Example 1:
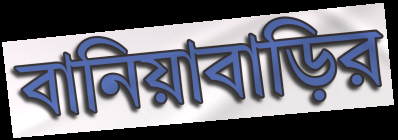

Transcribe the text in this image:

বানিয়াবাড়ির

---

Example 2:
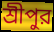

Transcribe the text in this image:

শ্রীপুর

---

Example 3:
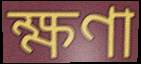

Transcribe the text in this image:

ক্ষণা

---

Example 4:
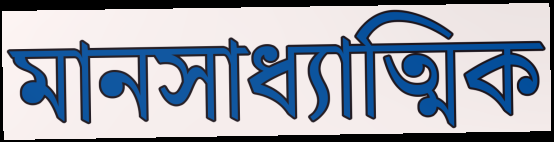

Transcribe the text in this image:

মানসাধ্যাত্মিক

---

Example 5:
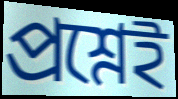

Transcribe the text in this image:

প্রশ্নেই